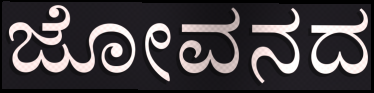
ಜೋವನದ